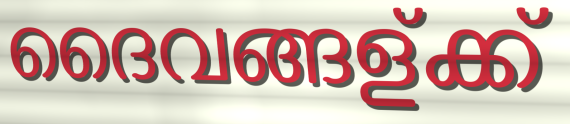
ദൈവങ്ങള്ക്ക്